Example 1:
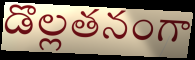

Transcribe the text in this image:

డొల్లతనంగా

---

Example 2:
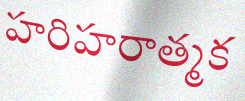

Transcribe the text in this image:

హరిహరాత్మక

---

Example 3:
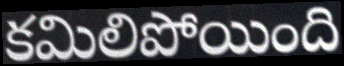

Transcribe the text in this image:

కమిలిపోయింది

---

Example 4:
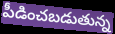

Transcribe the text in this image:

పీడించబడుతున్న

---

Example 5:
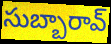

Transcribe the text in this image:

సుబ్బారావ్